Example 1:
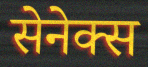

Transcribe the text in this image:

सेनेक्स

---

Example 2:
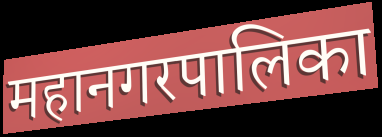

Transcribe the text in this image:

महानगरपालिका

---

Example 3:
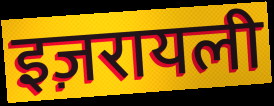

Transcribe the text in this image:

इज़रायली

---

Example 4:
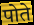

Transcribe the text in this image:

पोते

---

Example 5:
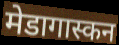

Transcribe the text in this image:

मेडागास्कन